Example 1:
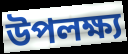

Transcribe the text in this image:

উপলক্ষ্য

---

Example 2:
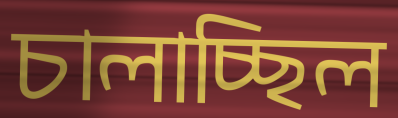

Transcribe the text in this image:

চালাচ্ছিল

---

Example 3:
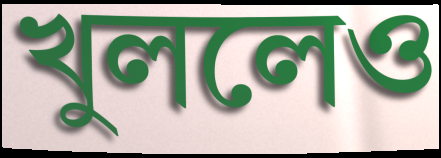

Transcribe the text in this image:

খুললেও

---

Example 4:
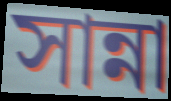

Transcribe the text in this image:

সান্না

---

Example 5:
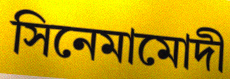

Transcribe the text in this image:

সিনেমামোদী